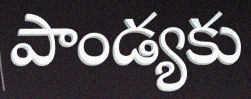
పాండ్యకు